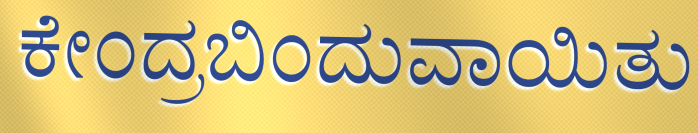
ಕೇಂದ್ರಬಿಂದುವಾಯಿತು